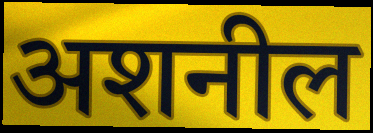
अशनील